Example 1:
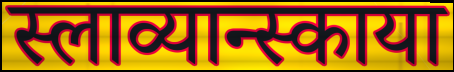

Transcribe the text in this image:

स्लाव्यान्स्काया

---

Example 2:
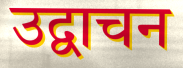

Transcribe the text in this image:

उद्वाचन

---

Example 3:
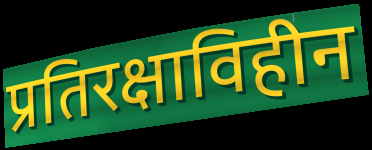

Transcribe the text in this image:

प्रतिरक्षाविहीन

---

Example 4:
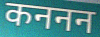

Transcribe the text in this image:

कननन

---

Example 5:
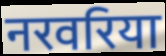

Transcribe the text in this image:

नरवरिया